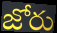
జోరు